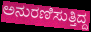
ಅನುರಣಿಸುತ್ತಿದ್ದ